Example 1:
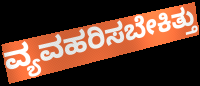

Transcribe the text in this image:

ವ್ಯವಹರಿಸಬೇಕಿತ್ತು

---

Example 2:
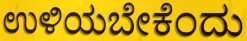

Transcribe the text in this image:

ಉಳಿಯಬೇಕೆಂದು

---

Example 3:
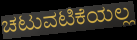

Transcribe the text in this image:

ಚಟುವಟಿಕೆಯಲ್ಲ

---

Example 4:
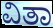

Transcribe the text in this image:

ವಿತಾ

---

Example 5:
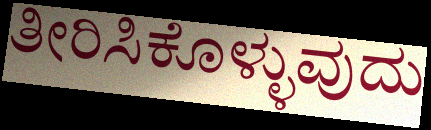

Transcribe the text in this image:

ತೀರಿಸಿಕೊಳ್ಳುವುದು